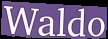
Waldo